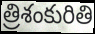
త్రిశంకురితి